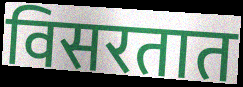
विसरतात